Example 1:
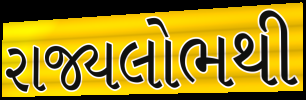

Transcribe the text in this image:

રાજ્યલોભથી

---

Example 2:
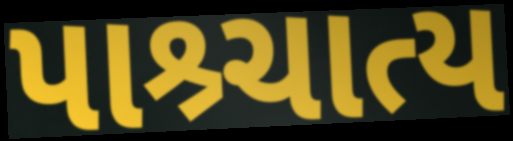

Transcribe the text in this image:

પાશ્ર્ચાત્ય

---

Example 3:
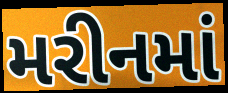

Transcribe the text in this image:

મરીનમાં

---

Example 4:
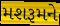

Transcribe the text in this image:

મશરૂમને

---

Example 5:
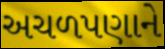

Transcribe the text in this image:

અચળપણાને